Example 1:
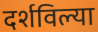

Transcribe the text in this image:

दर्शविल्या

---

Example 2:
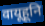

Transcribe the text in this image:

वायूहूनि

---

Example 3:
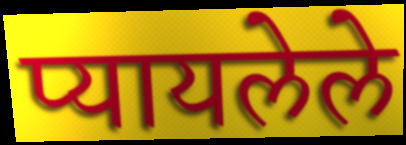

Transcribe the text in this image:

प्यायलेले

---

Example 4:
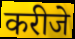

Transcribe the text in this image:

करीजे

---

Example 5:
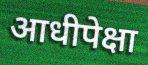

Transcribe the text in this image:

आधीपेक्षा